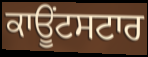
ਕਾਊਂਟਸਟਾਰ